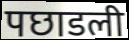
पछाडली